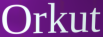
Orkut